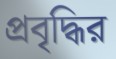
প্রবৃদ্ধির